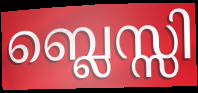
ബ്ലെസ്സി